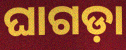
ଘାଗଡ଼ା